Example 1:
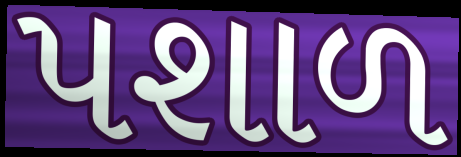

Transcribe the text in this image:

પશાળ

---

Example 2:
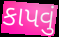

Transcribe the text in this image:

કાપવું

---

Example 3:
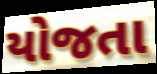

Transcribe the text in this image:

યોજતા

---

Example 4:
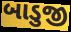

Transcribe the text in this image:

બાડુજી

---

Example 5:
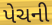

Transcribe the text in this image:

પેચની